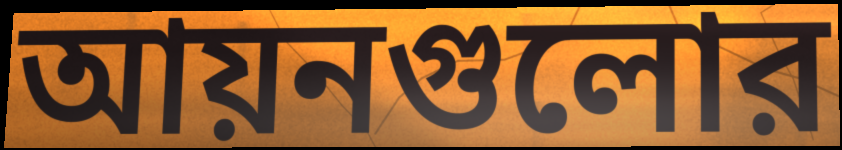
আয়নগুলোর